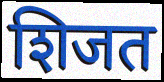
शिजत